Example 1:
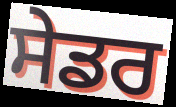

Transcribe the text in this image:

ਸੇਡਰ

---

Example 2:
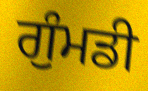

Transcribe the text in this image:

ਗੁੰਮਡੀ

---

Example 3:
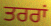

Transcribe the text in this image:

ਤਰਰਾਂ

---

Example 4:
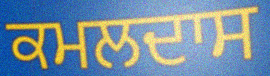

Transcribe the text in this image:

ਕਮਲਦਾਸ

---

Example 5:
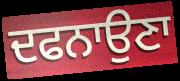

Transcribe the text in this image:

ਦਫਨਾਉਣਾ